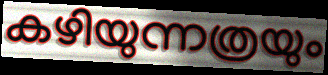
കഴിയുന്നത്രയും